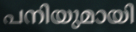
പനിയുമായി